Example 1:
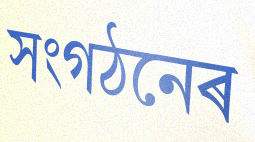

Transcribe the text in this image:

সংগঠনেৰ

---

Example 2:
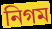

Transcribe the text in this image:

নিগম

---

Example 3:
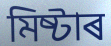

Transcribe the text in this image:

মিষ্টাৰ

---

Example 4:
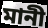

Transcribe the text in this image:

মানী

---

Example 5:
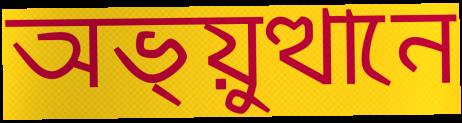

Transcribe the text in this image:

অভ্য়ুত্থানে